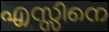
എസ്സിനെ